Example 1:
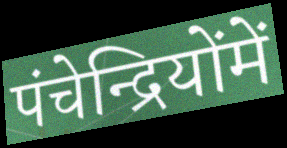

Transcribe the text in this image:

पंचेन्द्रियोंमें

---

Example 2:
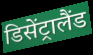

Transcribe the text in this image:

डिसेंट्रालैंड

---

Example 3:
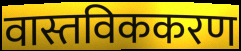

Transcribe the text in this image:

वास्तविककरण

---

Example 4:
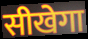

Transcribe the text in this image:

सीखेगा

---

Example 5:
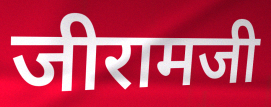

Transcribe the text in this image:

जीरामजी